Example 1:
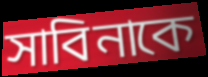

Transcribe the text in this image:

সাবিনাকে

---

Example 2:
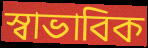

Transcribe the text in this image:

স্বাভাবিক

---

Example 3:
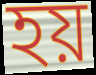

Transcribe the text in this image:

হয়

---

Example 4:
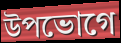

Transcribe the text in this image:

উপভোগে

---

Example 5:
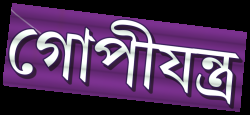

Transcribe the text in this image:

গোপীযন্ত্র